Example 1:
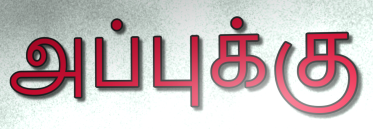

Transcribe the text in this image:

அப்புக்கு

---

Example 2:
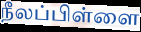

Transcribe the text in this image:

நீலப்பிள்ளை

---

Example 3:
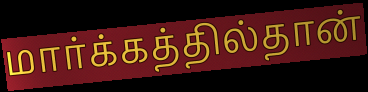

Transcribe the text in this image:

மார்க்கத்தில்தான்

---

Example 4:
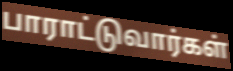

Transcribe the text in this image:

பாராட்டுவார்கள்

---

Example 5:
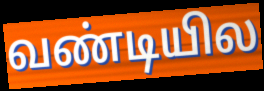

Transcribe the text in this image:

வண்டியில